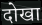
दोखा